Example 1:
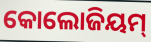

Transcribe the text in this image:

କୋଲୋଜିୟମ୍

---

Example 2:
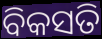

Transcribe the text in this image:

ବିକସତି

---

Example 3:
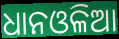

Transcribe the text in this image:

ଧାନଓଳିଆ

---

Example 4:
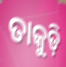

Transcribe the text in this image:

ତାକୁଡ଼ି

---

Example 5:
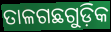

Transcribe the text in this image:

ତାଳଗଛଗୁଡ଼ିକ